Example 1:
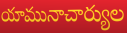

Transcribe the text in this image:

యామునాచార్యుల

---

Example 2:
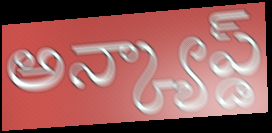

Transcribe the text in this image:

అన్క్యాప్డ్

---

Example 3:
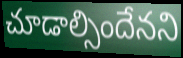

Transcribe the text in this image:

చూడాల్సిందేనని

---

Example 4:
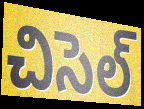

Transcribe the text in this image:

చిసెల్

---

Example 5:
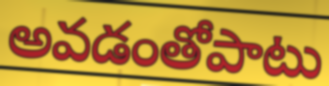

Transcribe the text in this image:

అవడంతోపాటు